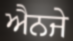
ਐਨਜੇ